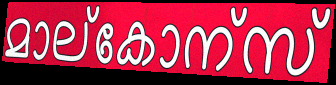
മാല്കോന്സ്